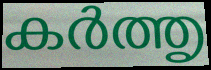
കർത്തൃ